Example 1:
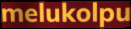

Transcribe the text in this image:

melukolpu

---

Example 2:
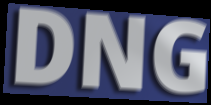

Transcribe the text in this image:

DNG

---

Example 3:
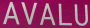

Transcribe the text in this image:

AVALU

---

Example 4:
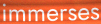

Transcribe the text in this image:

immerses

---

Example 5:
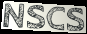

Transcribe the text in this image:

NSCS